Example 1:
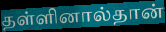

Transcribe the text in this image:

தள்ளினால்தான்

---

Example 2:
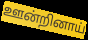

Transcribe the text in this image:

ஊன்றினாய்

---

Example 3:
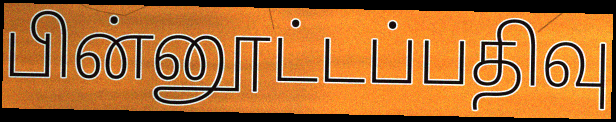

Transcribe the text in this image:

பின்னூட்டப்பதிவு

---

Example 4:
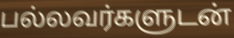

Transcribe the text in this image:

பல்லவர்களுடன்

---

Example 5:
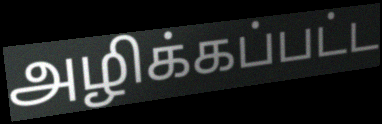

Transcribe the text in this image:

அழிக்கப்பட்ட